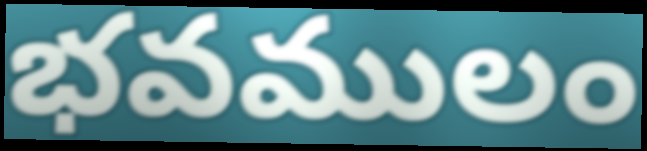
భవములం